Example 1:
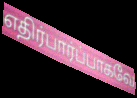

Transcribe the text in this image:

எதிர்பார்ப்பாகவே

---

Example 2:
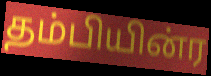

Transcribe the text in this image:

தம்பியின்ர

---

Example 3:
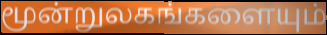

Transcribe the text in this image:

மூன்றுலகங்களையும்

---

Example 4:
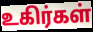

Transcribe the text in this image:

உகிர்கள்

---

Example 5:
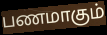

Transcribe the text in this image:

பணமாகும்